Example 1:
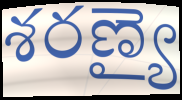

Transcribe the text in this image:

శరణ్యై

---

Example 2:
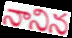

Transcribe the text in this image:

నానిన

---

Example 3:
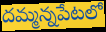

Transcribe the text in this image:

దమ్మన్నపేటలో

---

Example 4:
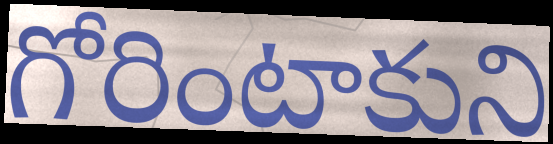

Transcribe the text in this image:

గోరింటాకుని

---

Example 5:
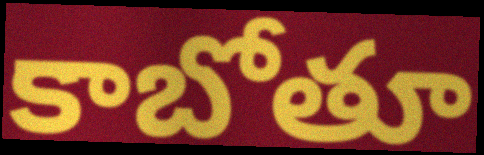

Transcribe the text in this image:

కాబోతూ